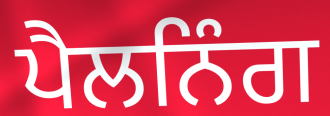
ਪੈਲਨਿੰਗ